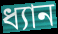
ধ্যান